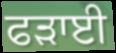
ਫੜਾਈ